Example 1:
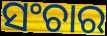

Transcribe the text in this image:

ସଂଚାର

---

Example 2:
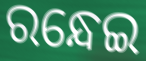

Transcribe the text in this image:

ରନ୍ଧେଇ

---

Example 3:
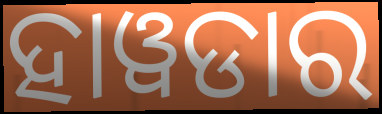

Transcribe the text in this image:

ହାୱଡାର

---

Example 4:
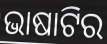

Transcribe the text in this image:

ଭାଷାଟିର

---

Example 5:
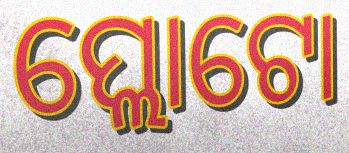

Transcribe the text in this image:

ପ୍ଲୋଟୋ